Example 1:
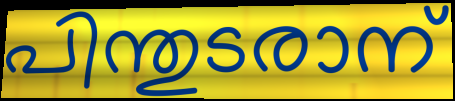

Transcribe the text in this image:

പിന്തുടരാന്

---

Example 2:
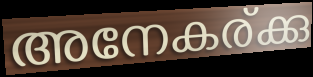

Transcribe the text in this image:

അനേകര്ക്കു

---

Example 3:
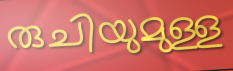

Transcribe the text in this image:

രുചിയുമുള്ള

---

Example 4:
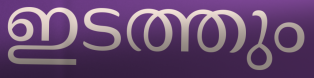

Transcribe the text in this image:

ഇടത്തും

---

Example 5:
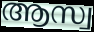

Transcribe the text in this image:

ആസ്വ